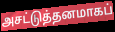
அசட்டுத்தனமாகப்